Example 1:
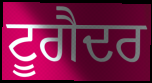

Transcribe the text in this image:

ਟੂਗੈਦਰ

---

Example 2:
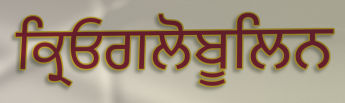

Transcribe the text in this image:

ਕ੍ਰਿਓਗਲੋਬੂਲਿਨ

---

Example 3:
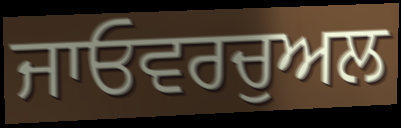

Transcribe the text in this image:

ਜਾਓਵਰਚੁਅਲ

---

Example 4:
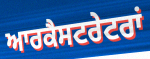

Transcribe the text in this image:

ਆਰਕੈਸਟਰੇਟਰਾਂ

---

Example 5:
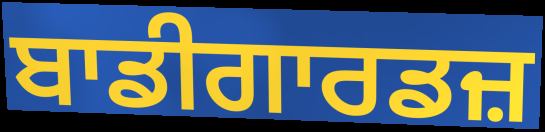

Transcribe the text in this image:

ਬਾਡੀਗਾਰਡਜ਼